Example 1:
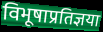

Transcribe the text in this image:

विभूषाप्रतिज्ञया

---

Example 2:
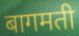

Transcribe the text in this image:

बागमती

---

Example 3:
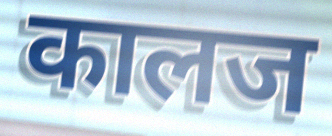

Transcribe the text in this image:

कालज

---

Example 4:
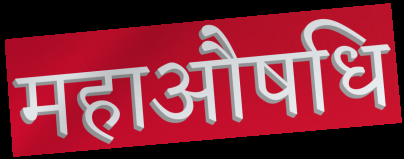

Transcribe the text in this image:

महाऔषधि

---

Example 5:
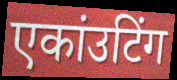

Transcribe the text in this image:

एकांउटिंग